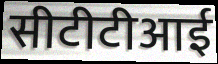
सीटीटीआई